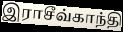
இராசீவ்காந்தி